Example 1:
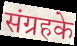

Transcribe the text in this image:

संग्रहके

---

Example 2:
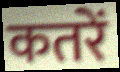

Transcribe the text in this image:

कतरें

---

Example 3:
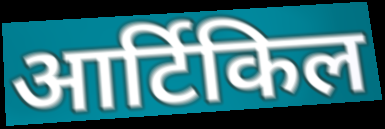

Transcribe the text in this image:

आर्टिकिल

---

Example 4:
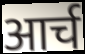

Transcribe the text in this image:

आर्च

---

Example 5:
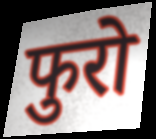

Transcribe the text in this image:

फुरो